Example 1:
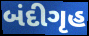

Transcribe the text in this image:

બંદીગૃહ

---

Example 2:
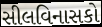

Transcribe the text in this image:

સીલવિનાસકો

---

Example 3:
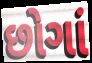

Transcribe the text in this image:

છોગાં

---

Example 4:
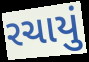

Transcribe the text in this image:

રચાયું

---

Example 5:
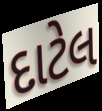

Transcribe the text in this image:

દાટેલ